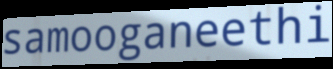
samooganeethi